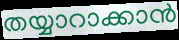
തയ്യാറാക്കാൻ